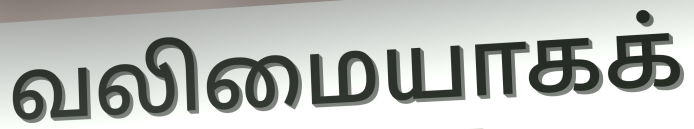
வலிமையாகக்